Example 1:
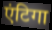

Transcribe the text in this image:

एंटिगा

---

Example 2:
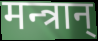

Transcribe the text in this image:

मन्त्रान्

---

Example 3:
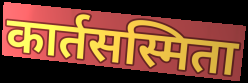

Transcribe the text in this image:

कार्तसस्मिता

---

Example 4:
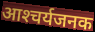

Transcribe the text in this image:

आश्‍चर्यजनक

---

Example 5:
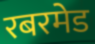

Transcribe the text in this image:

रबरमेड